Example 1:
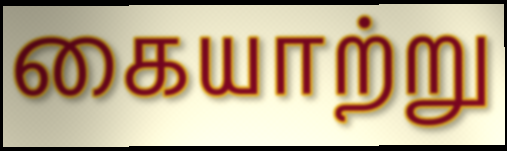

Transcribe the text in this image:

கையாற்று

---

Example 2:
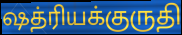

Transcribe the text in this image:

ஷத்ரியக்குருதி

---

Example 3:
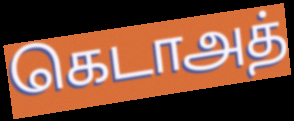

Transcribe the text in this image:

கெடாஅத்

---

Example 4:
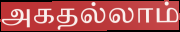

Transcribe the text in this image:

அகதல்லாம்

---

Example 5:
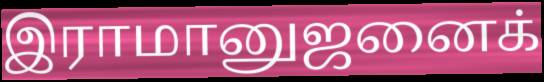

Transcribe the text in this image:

இராமானுஜனைக்